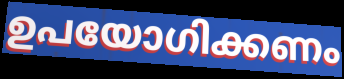
ഉപയോഗിക്കണം